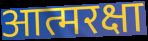
आत्मरक्षा